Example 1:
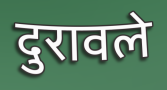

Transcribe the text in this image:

दुरावले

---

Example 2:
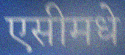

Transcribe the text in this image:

एसीमधे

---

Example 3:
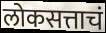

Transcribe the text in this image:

लोकसत्ताचं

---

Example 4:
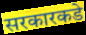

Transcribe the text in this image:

सरकारकडे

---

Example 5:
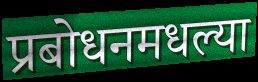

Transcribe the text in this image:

प्रबोधनमधल्या